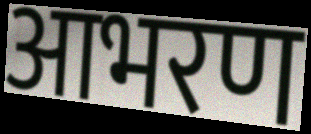
आभरण